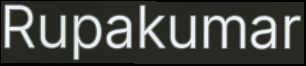
Rupakumar